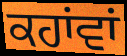
ਕਹਾਂਵਾਂ